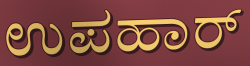
ಉಪಹಾರ್